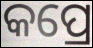
କପ୍ରେ